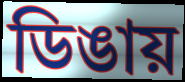
ডিঙায়